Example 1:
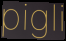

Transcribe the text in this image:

pigli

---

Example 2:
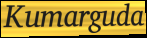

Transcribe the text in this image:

Kumarguda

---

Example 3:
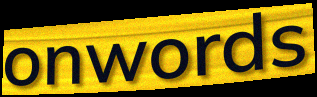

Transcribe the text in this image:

onwords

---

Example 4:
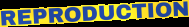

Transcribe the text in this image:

REPRODUCTION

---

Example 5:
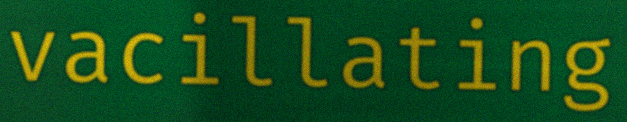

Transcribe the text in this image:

vacillating